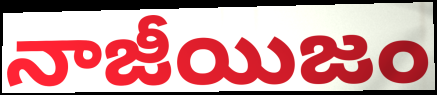
నాజీయిజం